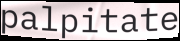
palpitate